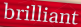
brilliant